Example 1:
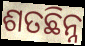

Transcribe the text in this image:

ଶତଛିନ୍ନ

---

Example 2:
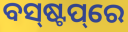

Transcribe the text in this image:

ବସ୍‌ଷ୍ଟପ୍‌ରେ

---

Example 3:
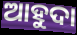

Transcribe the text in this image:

ଆହୁଦା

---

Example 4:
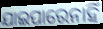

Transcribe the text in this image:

ଯାଇପାରେନାହିଁ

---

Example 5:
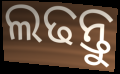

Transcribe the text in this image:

ଲଢନ୍ତୁ